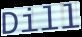
Dill